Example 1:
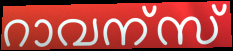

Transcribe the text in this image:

റാവന്സ്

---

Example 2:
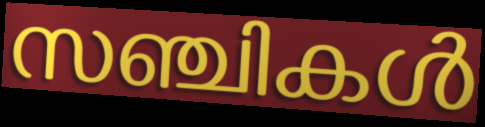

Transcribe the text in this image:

സഞ്ചികൾ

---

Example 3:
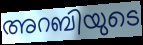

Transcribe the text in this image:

അറബിയുടെ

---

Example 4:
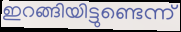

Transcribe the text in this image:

ഇറങ്ങിയിട്ടുണ്ടെന്ന്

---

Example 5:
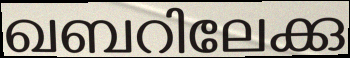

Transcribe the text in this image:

ഖബറിലേക്കു